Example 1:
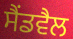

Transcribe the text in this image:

ਸੈਂਡਵੈਲ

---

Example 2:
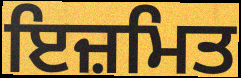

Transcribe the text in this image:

ਇਜ਼ਮਿਤ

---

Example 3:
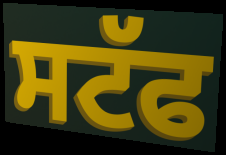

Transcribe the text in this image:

ਸਟੱਫ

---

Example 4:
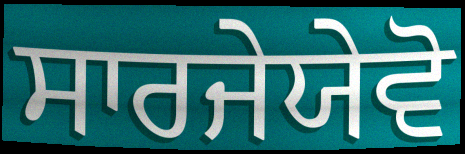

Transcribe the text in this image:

ਸਾਰਜੇਯੇਵੋ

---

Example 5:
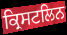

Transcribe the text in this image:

ਕ੍ਰਿਸਟਲਿਨ